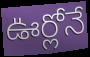
ఊర్లోనే